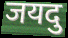
जयदु